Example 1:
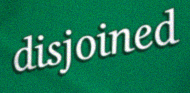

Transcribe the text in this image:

disjoined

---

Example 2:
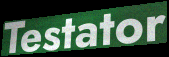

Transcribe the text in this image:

Testator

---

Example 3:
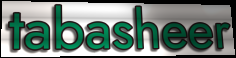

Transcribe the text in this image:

tabasheer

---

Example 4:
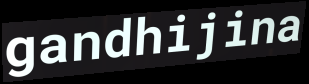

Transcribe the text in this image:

gandhijina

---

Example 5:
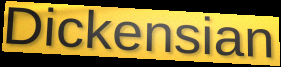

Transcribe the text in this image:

Dickensian